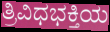
ತ್ರಿವಿಧಭಕ್ತಿಯ